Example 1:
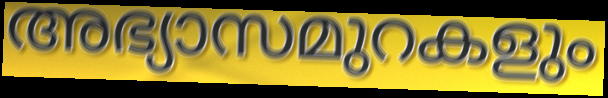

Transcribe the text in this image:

അഭ്യാസമുറകളും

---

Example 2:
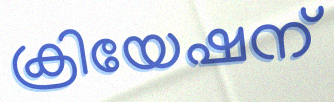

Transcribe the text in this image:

ക്രിയേഷന്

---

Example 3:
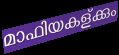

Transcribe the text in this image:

മാഫിയകള്ക്കും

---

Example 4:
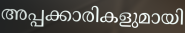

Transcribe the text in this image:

അപ്പക്കാരികളുമായി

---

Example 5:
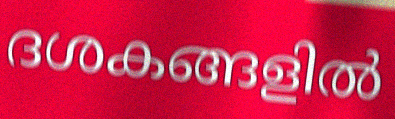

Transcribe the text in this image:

ദശകങ്ങളിൽ